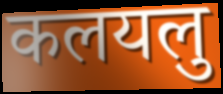
कलयलु